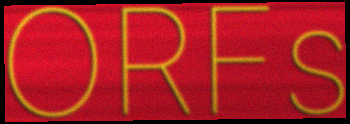
ORFs